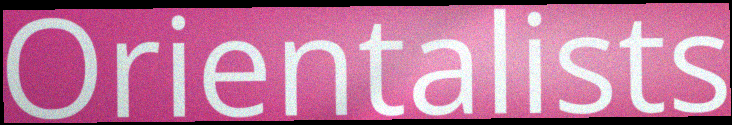
Orientalists